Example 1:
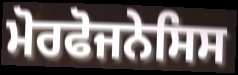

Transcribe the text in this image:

ਮੋਰਫੋਜਨੇਸਿਸ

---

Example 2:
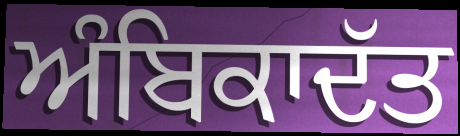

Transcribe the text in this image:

ਅੰਬਿਕਾਦੱਤ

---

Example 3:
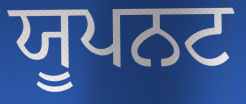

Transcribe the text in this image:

ਯੂਪਨਟ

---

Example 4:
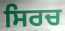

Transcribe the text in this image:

ਸਿਰਚ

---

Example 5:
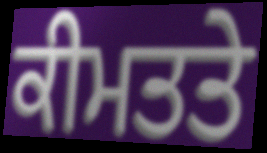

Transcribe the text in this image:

ਕੀਮਤਤੇ